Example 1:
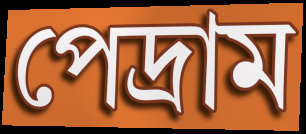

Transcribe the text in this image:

পেদ্রাম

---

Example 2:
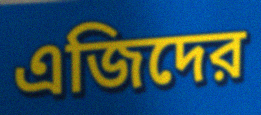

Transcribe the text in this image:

এজিদের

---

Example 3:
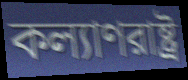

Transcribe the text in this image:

কল্যাণরাষ্ট্র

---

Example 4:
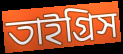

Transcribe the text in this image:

তাইগ্রিস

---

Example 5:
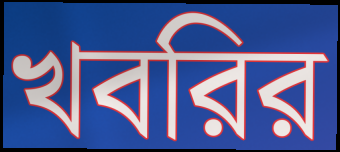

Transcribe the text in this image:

খবরির